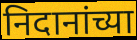
निदानांच्या